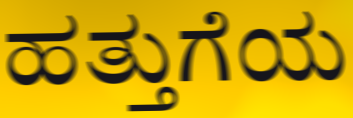
ಹತ್ತುಗೆಯ